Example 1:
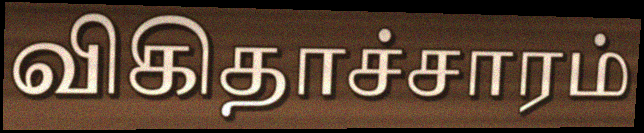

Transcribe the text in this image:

விகிதாச்சாரம்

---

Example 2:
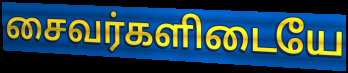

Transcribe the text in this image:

சைவர்களிடையே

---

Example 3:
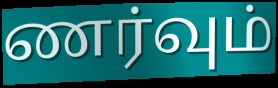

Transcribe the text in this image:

ணர்வும்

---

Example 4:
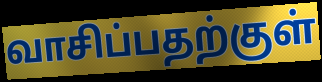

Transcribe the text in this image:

வாசிப்பதற்குள்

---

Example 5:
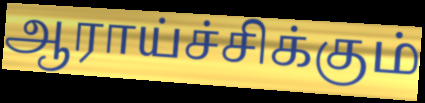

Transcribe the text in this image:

ஆராய்ச்சிக்கும்